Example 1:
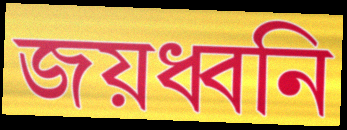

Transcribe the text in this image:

জয়ধ্বনি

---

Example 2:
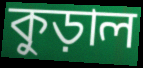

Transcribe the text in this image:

কুড়াল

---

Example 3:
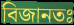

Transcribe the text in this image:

বিজানতঃ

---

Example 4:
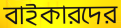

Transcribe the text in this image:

বাইকারদের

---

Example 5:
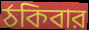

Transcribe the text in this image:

ঠকিবার